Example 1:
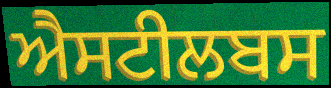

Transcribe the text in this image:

ਐਸਟੀਲਬਸ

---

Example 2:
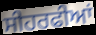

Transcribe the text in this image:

ਸੀਹਰਫੀਆਂ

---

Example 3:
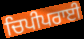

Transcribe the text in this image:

ਚਿਪੀਪਰਾਈ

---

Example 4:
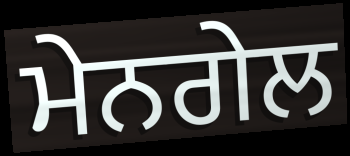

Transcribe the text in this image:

ਮੇਨਗੇਲ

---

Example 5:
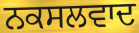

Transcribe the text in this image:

ਨਕਸਲਵਾਦ